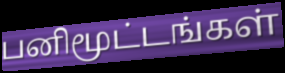
பனிமூட்டங்கள்